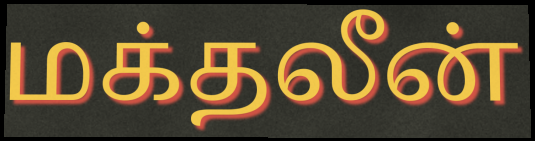
மக்தலீன்